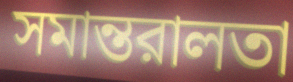
সমান্তরালতা